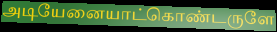
அடியேனையாட்கொண்டருளே